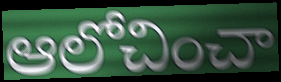
ఆలోచించా